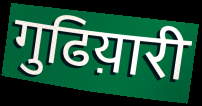
गुढिय़ारी